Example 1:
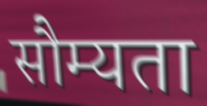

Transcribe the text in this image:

सौम्यता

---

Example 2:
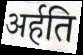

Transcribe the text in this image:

अर्हति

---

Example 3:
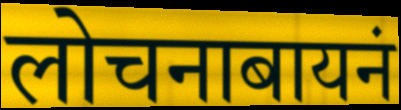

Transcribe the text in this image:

लोचनाबायनं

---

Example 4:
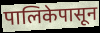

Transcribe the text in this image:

पालिकेपासून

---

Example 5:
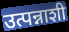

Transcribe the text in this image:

उत्पन्नाशी